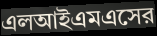
এলআইএমএসের